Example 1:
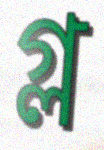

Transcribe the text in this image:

গ্ল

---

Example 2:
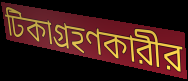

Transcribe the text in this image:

টিকাগ্রহণকারীর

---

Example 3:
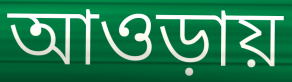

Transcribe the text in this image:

আওড়ায়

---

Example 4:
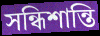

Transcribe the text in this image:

সন্ধিশান্তি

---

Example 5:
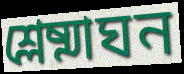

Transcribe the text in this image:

শ্লেষ্মাঘন